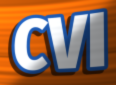
CVI